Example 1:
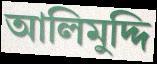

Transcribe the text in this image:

আলিমুদ্দি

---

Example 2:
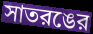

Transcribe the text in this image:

সাতরঙের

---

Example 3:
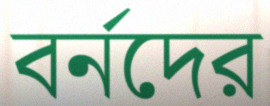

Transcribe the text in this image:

বর্নদের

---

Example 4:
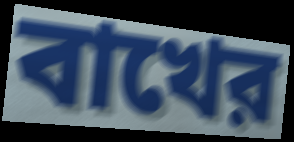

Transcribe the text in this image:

বাখের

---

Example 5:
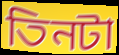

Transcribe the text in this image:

তিনটা